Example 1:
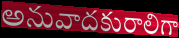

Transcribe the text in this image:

అనువాదకురాలిగా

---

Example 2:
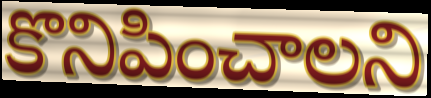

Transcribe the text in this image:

కొనిపించాలని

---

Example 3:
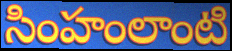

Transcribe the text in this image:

సింహంలాంటి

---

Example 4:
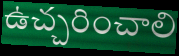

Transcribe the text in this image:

ఉచ్చరించాలి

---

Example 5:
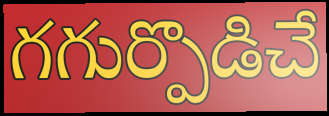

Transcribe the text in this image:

గగుర్పొడిచే